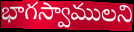
భాగస్వాములని